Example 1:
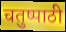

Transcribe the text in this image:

चतुष्पाठी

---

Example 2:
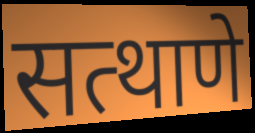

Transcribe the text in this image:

सत्थाणे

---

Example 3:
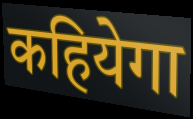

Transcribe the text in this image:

कहियेगा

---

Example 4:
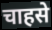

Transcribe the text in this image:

चाहसे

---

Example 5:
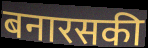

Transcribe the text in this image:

बनारसकी